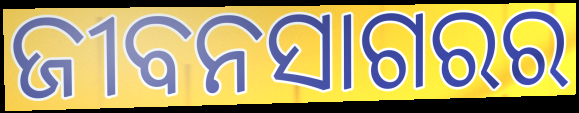
ଜୀବନସାଗରର